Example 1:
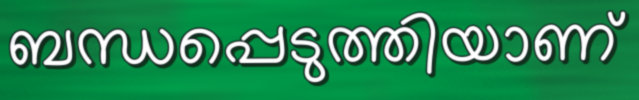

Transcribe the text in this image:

ബന്ധപ്പെടുത്തിയാണ്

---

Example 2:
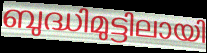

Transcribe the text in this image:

ബുദ്ധിമുട്ടിലായി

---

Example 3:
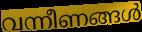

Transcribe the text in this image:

വന്നീണങ്ങൾ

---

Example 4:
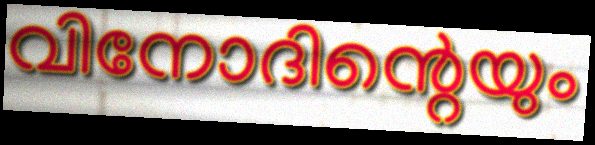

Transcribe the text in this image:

വിനോദിന്റെയും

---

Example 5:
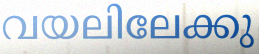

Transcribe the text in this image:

വയലിലേക്കു